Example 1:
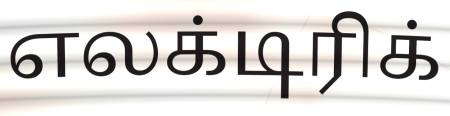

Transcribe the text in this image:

எலக்டிரிக்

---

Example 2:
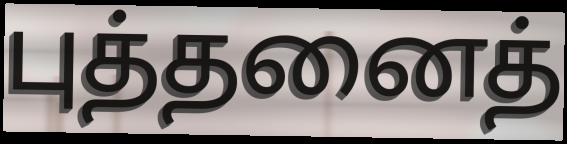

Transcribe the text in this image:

புத்தனைத்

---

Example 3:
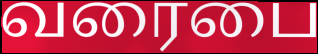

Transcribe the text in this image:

வரைபை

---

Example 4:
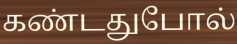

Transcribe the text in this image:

கண்டதுபோல்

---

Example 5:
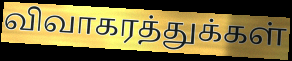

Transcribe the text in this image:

விவாகரத்துக்கள்